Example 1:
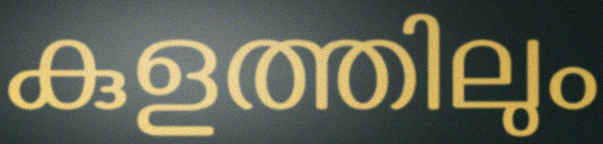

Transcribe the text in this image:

കുളത്തിലും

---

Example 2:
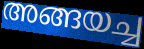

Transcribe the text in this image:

അങ്ങയച്ച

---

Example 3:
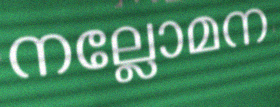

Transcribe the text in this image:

നല്ലോമന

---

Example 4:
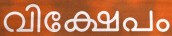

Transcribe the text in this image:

വിക്ഷേപം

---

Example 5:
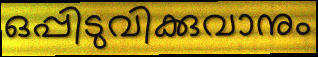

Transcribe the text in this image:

ഒപ്പിടുവിക്കുവാനും